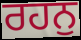
ਰਹਨੁ